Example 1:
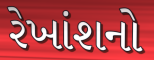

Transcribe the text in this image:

રેખાંશનો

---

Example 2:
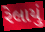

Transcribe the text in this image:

રેલાયું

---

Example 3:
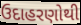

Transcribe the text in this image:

ઉદાહરણોથી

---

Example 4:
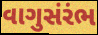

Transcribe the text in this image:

વાગુસંરંભ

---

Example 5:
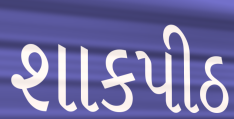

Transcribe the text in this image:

શાકપીઠ